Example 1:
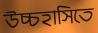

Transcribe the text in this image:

উচ্চহাসিতে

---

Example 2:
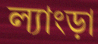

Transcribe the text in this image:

ল্যাংড়া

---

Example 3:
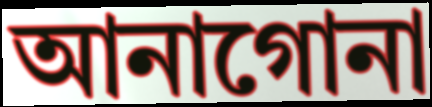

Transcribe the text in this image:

আনাগোনা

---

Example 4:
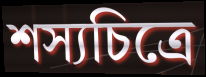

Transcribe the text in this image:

শস্যচিত্রে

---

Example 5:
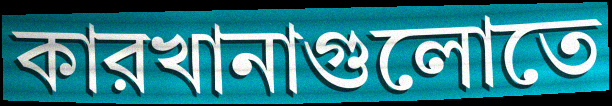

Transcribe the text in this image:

কারখানাগুলোতে